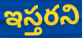
ఇస్తరని